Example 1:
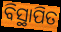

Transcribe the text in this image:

ବିସ୍ଥାପିତ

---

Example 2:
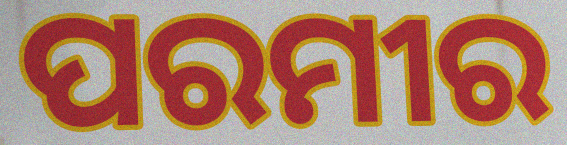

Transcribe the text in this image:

ପରମୀର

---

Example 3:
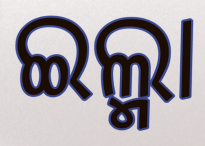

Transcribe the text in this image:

ଇଲ୍ମା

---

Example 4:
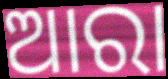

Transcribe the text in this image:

ଆରା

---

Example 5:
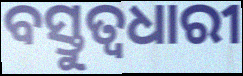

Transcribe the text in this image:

ବସ୍ତୁତ୍ୱଧାରୀ